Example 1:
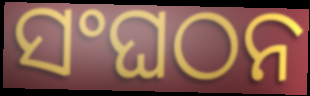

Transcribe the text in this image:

ସଂଘଠନ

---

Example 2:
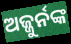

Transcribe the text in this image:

ଅଜ୍ଜୁର୍ନଙ୍କ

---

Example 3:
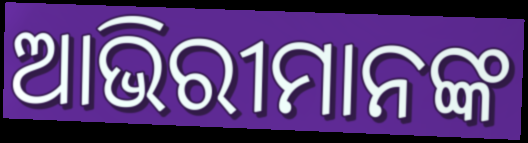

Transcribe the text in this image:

ଆଭିରୀମାନଙ୍କ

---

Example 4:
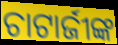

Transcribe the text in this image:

ଚାଟାର୍ଜୀଙ୍କ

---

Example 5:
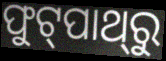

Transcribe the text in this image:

ଫୁଟ୍‌ପାଥ୍‌ରୁ